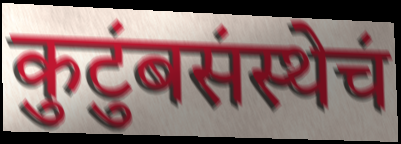
कुटुंबसंस्थेचं